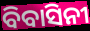
ବିବାସିନୀ